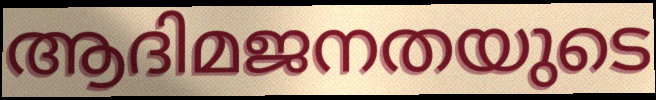
ആദിമജനതയുടെ